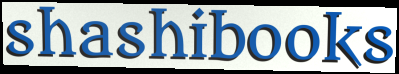
shashibooks